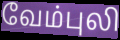
வேம்புலி